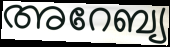
അറേബ്യ